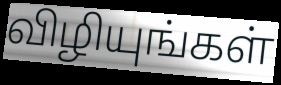
விழியுங்கள்